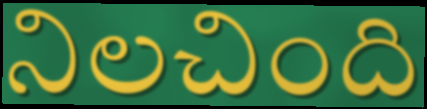
నిలచింది